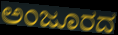
ಅಂಜೂರದ